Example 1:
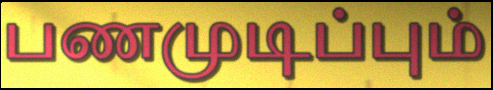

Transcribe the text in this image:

பணமுடிப்பும்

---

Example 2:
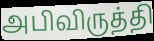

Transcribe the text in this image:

அபிவிருத்தி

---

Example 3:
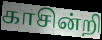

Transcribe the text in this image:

காசின்றி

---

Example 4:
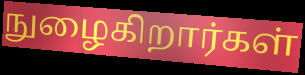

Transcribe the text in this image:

நுழைகிறார்கள்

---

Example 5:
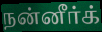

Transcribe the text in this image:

நன்னீர்க்